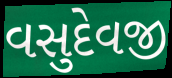
વસુદેવજી